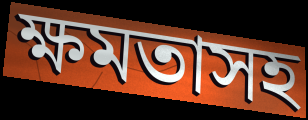
ক্ষমতাসহ